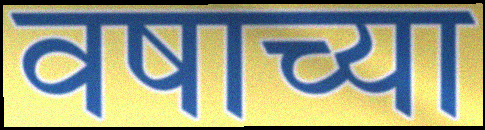
वषाच्या